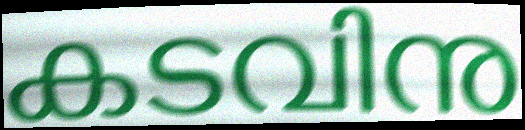
കടവിനു